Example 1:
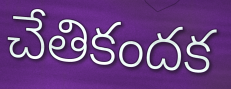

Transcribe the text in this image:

చేతికందక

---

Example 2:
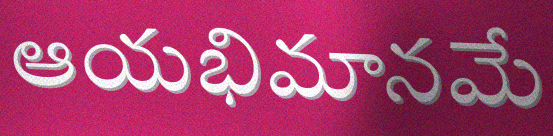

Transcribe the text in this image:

ఆయభిమానమే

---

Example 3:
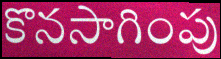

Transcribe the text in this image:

కొనసాగింపు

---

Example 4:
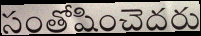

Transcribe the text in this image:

సంతోషించెదరు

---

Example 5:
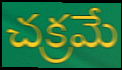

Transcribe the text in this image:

చక్రమే